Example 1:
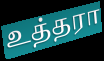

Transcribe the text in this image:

உத்தரா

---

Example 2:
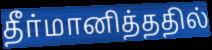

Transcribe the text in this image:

தீர்மானித்ததில்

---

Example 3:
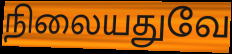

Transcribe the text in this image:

நிலையதுவே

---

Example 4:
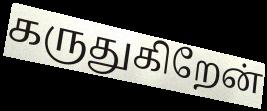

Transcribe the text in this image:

கருதுகிறேன்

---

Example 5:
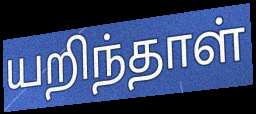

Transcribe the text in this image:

யறிந்தாள்